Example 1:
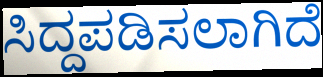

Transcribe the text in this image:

ಸಿದ್ದಪಡಿಸಲಾಗಿದೆ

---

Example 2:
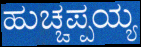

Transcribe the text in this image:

ಹುಚ್ಚಪ್ಪಯ್ಯ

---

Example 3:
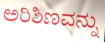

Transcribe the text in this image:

ಅರಿಶಿಣವನ್ನು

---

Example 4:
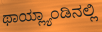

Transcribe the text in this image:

ಥಾಯ್ಲ್ಯಾಂಡಿನಲ್ಲಿ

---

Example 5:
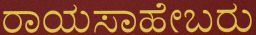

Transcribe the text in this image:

ರಾಯಸಾಹೇಬರು